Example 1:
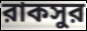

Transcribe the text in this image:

রাকসুর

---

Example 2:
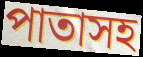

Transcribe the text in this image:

পাতাসহ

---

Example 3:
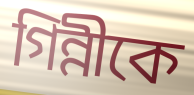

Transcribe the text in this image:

গিন্নীকে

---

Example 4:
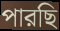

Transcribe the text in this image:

পারছি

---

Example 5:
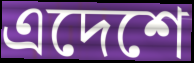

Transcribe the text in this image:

এদেশে